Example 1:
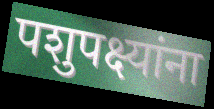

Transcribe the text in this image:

पशुपक्ष्यांना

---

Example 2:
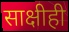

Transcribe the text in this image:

साक्षीही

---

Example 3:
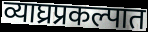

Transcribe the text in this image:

व्याघ्रप्रकल्पात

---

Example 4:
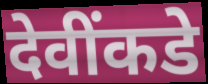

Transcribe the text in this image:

देवींकडे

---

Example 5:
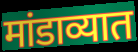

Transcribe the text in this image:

मांडाव्यात